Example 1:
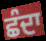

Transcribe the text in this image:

ਛੰਦਾ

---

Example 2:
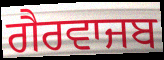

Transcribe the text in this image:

ਗੈਰਵਾਜਬ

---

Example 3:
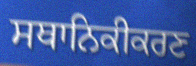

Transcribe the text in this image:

ਸਥਾਨਿਕੀਕਰਣ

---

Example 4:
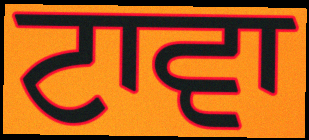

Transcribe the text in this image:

ਟਾਵਾ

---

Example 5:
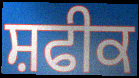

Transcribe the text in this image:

ਸ਼ਫੀਕ